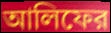
আলিফের